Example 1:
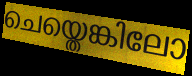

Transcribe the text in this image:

ചെയ്തെങ്കിലോ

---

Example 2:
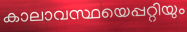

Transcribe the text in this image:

കാലാവസ്ഥയെപ്പറ്റിയും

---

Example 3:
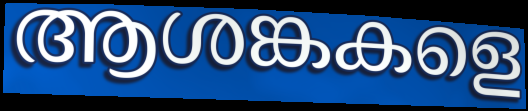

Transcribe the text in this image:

ആശങ്കകളെ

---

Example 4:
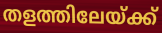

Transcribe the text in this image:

തളത്തിലേയ്ക്ക്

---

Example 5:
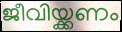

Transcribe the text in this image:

ജീവിയ്ക്കണം